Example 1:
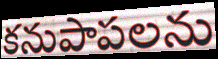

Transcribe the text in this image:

కనుపాపలను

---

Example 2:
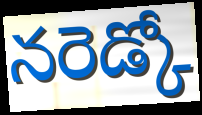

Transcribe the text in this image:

నరెడ్కో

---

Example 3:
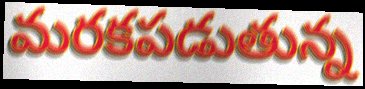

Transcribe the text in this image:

మరకపడుతున్న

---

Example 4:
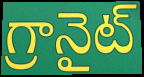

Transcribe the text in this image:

గ్రానైట్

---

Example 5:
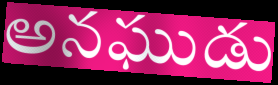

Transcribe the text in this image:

అనఘుడు